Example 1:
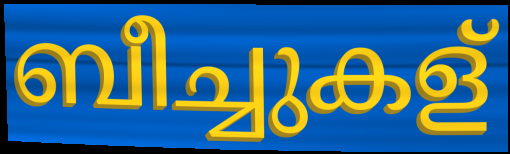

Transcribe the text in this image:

ബീച്ചുകള്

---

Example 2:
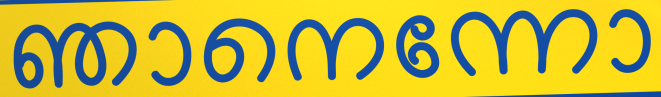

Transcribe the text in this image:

ഞാനെന്നോ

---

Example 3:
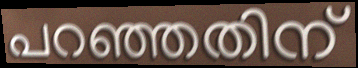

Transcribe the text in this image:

പറഞ്ഞതിന്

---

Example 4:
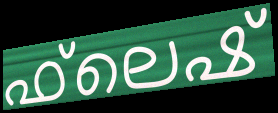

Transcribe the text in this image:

ഫ്‌ലെഷ്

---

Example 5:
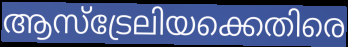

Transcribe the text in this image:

ആസ്ട്രേലിയക്കെതിരെ